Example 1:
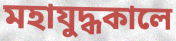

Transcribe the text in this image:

মহাযুদ্ধকালে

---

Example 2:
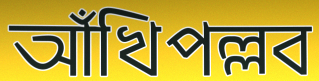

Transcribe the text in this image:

আঁখিপল্লব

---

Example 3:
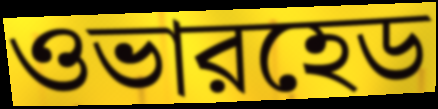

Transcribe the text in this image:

ওভারহেড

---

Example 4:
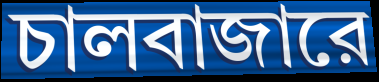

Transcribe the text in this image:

চালবাজারে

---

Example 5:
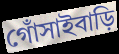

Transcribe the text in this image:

গোঁসাইবাড়ি